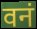
वनं